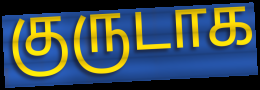
குருடாக